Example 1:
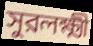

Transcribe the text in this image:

সুরলক্ষ্মী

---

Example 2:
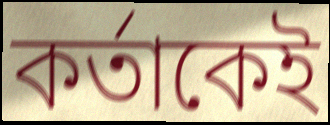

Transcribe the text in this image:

কর্তাকেই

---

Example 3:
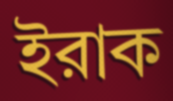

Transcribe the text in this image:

ইরাক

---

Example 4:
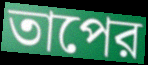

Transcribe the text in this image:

তাপের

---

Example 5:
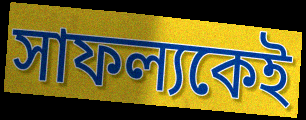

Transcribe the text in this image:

সাফল্যকেই